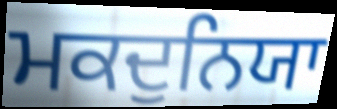
ਮਕਦੁਨਿਯਾ